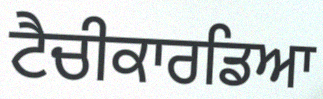
ਟੈਚੀਕਾਰਡਿਆ